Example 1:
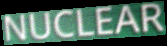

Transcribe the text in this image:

NUCLEAR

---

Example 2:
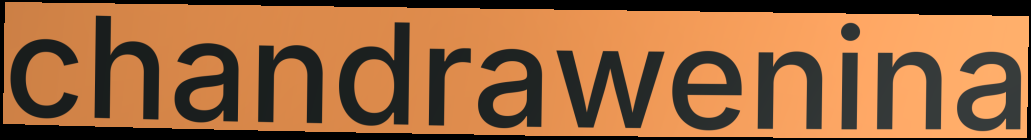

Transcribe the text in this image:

chandrawenina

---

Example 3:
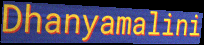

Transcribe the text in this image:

Dhanyamalini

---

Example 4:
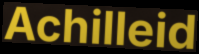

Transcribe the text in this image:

Achilleid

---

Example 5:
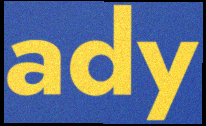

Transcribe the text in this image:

ady